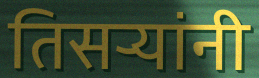
तिसऱ्यांनी